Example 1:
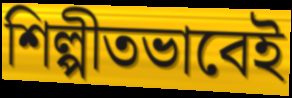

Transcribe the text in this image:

শিল্পীতভাবেই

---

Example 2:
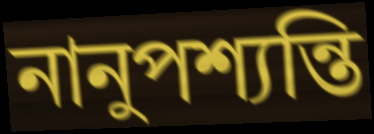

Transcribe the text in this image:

নানুপশ্যন্তি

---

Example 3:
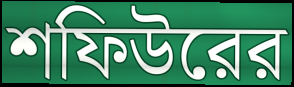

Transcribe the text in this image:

শফিউরের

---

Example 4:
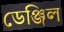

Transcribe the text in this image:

ডেঞ্জিল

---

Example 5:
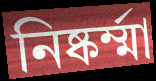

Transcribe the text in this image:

নিষ্কর্ম্মা